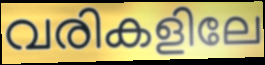
വരികളിലേ